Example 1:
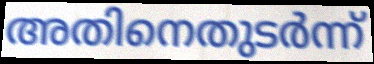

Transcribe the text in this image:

അതിനെതുടർന്ന്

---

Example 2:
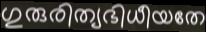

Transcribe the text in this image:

ഗുരുരിത്യഭിധീയതേ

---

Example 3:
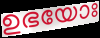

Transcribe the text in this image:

ഉഭയോഃ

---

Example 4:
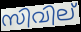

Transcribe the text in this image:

സിവില്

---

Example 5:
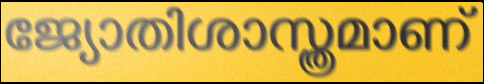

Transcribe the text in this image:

ജ്യോതിശാസ്ത്രമാണ്